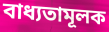
বাধ্যতামূলক